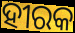
ହୀରକ